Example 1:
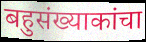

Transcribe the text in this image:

बहुसंख्याकांचा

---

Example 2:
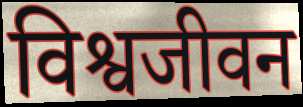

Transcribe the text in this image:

विश्वजीवन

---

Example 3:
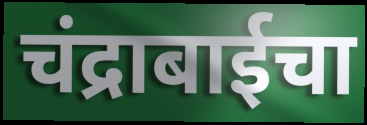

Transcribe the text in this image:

चंद्राबाईचा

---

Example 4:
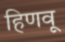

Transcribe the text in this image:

हिणवू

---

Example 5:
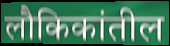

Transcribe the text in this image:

लौकिकांतील